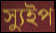
স্যুইপ